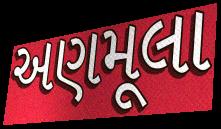
અણમૂલા